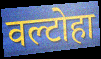
वल्टोहा